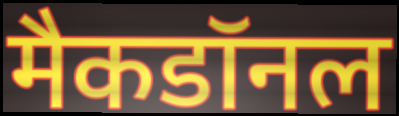
मैकडॉनल